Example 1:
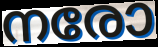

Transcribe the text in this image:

നരോ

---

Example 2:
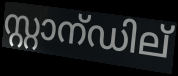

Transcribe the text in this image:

സ്റ്റാന്ഡില്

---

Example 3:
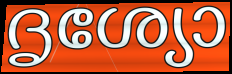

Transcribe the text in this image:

ദൃശ്യോ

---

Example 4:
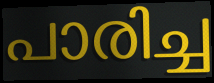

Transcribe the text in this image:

പാരിച്ച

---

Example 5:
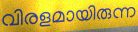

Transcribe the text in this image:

വിരളമായിരുന്ന